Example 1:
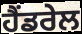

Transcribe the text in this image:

ਹੈਂਡਰੇਲ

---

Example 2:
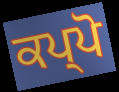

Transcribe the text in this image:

ਕਪ੍ਪੋ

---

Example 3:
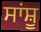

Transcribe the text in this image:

ਸਾਂਸ਼ੂ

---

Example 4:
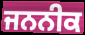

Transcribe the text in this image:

ਜਨਨੀਕ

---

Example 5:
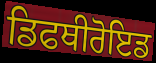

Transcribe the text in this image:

ਡਿਫਥੀਰੋਇਡ